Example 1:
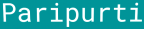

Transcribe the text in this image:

Paripurti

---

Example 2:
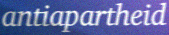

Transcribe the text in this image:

antiapartheid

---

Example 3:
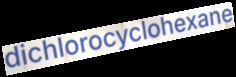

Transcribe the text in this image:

dichlorocyclohexane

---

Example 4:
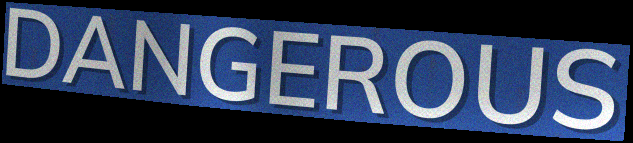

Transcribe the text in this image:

DANGEROUS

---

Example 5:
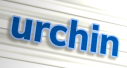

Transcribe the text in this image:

urchin